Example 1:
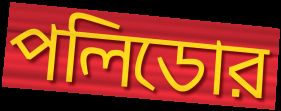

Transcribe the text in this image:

পলিডোর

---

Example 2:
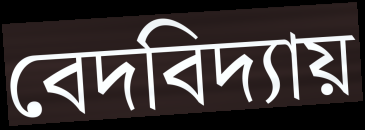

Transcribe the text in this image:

বেদবিদ্যায়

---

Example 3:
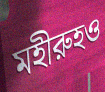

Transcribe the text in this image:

মহীরুহও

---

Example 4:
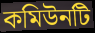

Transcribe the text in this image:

কমিউনটি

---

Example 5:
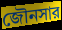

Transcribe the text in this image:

জৌনসার